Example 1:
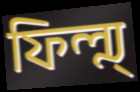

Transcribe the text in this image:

ফিল্ম্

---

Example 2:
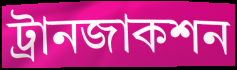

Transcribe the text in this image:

ট্রানজাকশন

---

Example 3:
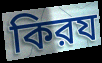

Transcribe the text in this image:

কিরয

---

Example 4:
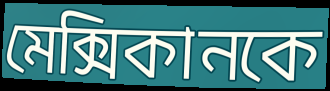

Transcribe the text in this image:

মেক্সিকানকে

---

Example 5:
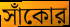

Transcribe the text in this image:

সাঁকোর